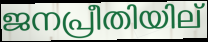
ജനപ്രീതിയില്